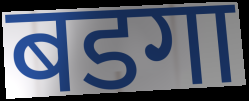
बडगा